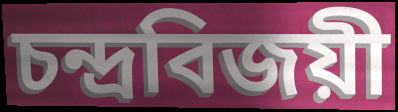
চন্দ্রবিজয়ী